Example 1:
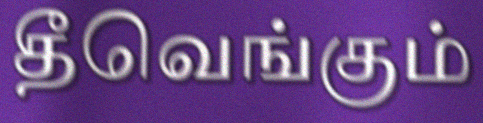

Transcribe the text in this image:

தீவெங்கும்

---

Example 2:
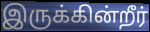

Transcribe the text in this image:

இருக்கின்றீர்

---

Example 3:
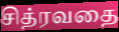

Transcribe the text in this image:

சித்ரவதை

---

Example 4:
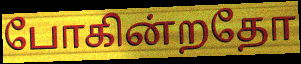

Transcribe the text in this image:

போகின்றதோ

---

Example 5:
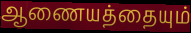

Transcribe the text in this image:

ஆணையத்தையும்